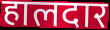
हालदार